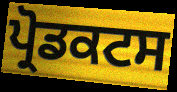
ਪ੍ਰੋਡਕਟਸ